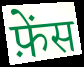
फ़ेंस